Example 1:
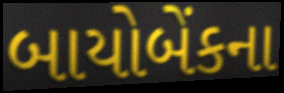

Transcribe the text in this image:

બાયોબેંકના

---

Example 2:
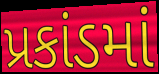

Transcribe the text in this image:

પ્રકાંડમાં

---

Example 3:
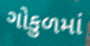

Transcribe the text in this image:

ગોકુળમાં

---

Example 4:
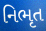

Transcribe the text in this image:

નિભૃત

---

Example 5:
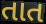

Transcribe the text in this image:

તાત